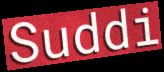
Suddi